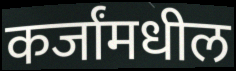
कर्जांमधील